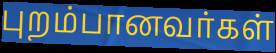
புறம்பானவர்கள்